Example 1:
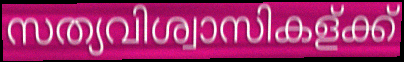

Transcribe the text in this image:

സത്യവിശ്വാസികള്ക്ക്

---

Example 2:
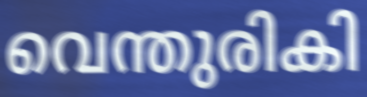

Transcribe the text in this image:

വെന്തുരികി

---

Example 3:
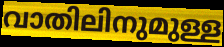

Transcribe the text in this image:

വാതിലിനുമുള്ള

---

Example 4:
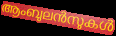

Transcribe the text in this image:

ആംബുലൻസുകൾ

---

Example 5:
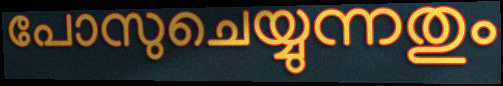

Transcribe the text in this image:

പോസുചെയ്യുന്നതും